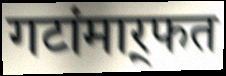
गटांमार्फत